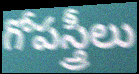
గోపస్త్రీలు